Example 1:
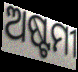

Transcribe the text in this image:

ଅଷ୍ଟମୀ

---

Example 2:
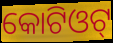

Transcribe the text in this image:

କୋଟିଓଟ୍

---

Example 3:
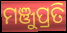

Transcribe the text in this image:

ମଞ୍ଜୁପ୍ରତି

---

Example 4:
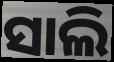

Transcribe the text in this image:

ସାଲି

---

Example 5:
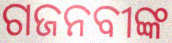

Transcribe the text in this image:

ଗଜନବୀଙ୍କ